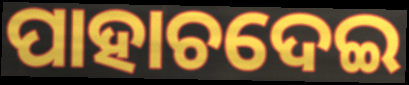
ପାହାଚଦେଇ